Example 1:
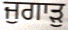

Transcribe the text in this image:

ਜੁਗਾੜੁ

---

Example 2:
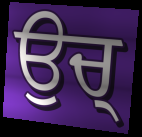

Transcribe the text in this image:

ਉਚ੍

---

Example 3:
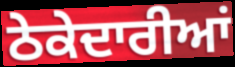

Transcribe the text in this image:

ਠੇਕੇਦਾਰੀਆਂ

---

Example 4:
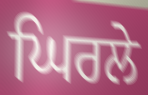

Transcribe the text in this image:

ਘਿਰਲੇ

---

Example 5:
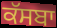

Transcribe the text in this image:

ਕੱਸਬਾ